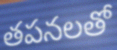
తపనలతో